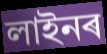
লাইনৰ